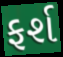
ફર્શ